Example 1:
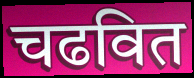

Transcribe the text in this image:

चढवित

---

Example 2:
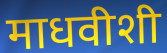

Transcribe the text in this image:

माधवीशी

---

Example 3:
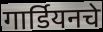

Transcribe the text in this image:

गार्डियनचे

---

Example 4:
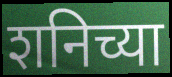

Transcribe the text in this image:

शनिच्या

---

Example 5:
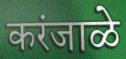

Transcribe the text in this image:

करंजाळे